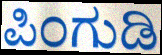
ಪಿಂಗುಡಿ